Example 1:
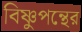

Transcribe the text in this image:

বিষ্ণুপন্থের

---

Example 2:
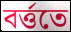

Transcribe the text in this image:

বর্ত্ততে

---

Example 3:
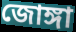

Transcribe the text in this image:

জোঙ্গা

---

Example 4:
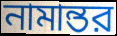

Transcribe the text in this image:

নামান্তর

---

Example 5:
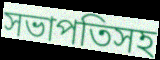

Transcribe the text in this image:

সভাপতিসহ